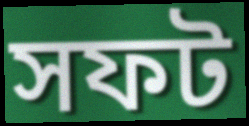
সফট